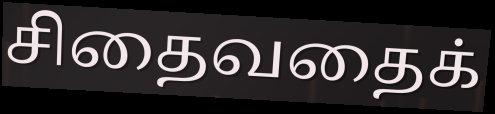
சிதைவதைக்